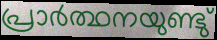
പ്രാർത്ഥനയുണ്ടു്